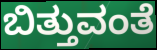
ಬಿತ್ತುವಂತೆ